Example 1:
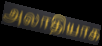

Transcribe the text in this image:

அலாதியாக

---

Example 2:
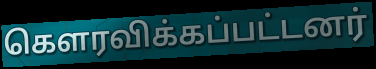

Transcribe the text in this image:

கௌரவிக்கப்பட்டனர்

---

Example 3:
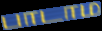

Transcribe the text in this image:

பாடாம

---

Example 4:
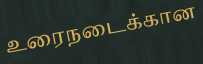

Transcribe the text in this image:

உரைநடைக்கான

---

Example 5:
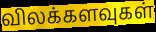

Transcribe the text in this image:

விலக்களவுகள்